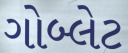
ગોબ્લેટ